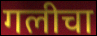
गलीचा